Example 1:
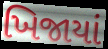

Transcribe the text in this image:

ખિજાયાં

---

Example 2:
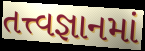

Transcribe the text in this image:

તત્ત્વજ્ઞાનમાં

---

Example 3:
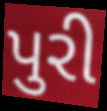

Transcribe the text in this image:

પુરી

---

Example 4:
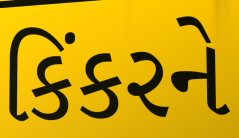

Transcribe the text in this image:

કિંકરને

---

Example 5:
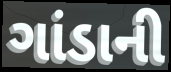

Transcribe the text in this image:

ગાંડાની